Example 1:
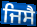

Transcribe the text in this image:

ਜਿਸੈ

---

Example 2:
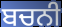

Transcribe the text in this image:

ਬਚਨੀ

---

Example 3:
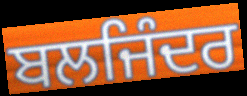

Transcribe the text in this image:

ਬਲਜਿੰਦਰ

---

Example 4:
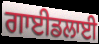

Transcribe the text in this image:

ਗਾਈਡਲਾਈ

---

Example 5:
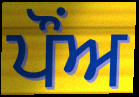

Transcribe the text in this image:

ਪੌਂਅ